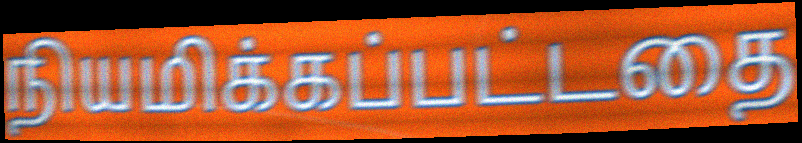
நியமிக்கப்பட்டதை